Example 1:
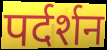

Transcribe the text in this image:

पर्दर्शन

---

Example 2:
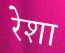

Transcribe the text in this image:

रेशा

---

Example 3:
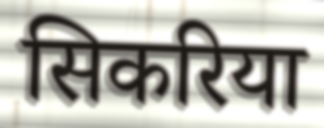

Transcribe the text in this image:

सिकरिया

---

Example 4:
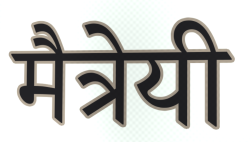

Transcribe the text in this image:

मैत्रेयी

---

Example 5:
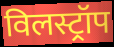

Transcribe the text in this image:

विलस्ट्रॉप